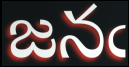
జనఁ